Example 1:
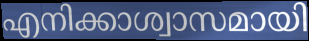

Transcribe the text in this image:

എനിക്കാശ്വാസമായി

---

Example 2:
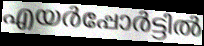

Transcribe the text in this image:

എയർപ്പോർട്ടിൽ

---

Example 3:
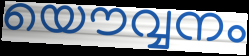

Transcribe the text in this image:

യൌവ്വനം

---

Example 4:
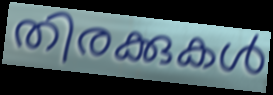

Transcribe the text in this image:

തിരക്കുകൾ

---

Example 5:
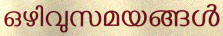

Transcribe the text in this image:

ഒഴിവുസമയങ്ങൾ